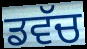
ਡਵੱਚ